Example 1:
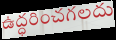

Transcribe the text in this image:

ఉద్ధరించగలదు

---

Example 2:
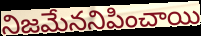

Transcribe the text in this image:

నిజమేననిపించాయి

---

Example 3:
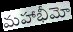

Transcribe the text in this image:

మహాభీమో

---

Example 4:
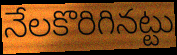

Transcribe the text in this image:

నేలకొరిగినట్టు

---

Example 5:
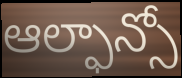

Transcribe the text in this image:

ఆల్ఫాన్సో